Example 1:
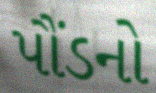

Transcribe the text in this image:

પૌંડનો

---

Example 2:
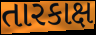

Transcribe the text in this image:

તારકાક્ષ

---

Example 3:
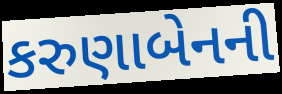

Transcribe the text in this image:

કરુણાબેનની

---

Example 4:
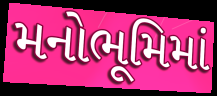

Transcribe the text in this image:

મનોભૂમિમાં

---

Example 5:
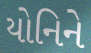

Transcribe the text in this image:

યોનિને